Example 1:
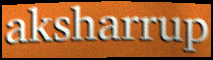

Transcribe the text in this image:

aksharrup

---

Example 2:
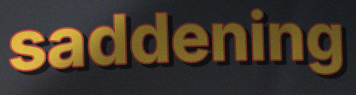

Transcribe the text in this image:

saddening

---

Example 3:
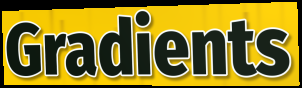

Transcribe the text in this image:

Gradients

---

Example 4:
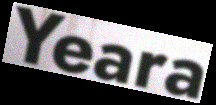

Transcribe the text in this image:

Yeara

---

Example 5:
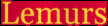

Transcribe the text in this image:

Lemurs